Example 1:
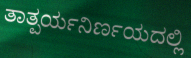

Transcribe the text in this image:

ತಾತ್ಪರ್ಯನಿರ್ಣಯದಲ್ಲಿ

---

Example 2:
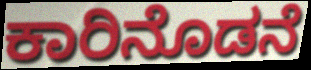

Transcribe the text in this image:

ಕಾರಿನೊಡನೆ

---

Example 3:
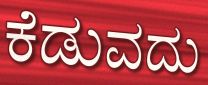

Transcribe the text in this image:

ಕೆಡುವದು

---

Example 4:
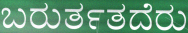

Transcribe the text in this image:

ಬರುರ್ತತದೆರು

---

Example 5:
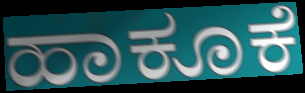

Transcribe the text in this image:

ಹಾಕೂಕೆ